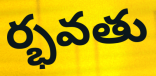
ర్భవతు